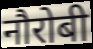
नौरोबी